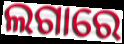
ଲଗାରେ